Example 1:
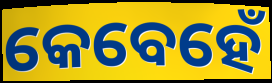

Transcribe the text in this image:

କେବେହେଁ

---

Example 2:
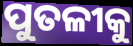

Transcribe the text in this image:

ପୁତଳୀକୁ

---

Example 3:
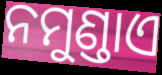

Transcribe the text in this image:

ନମୁଣ୍ଡାଏ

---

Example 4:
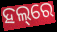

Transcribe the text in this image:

ହଲ୍‌ରେ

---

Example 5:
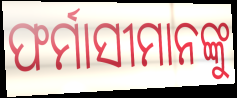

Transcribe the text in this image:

ଫର୍ମାସୀମାନଙ୍କୁ